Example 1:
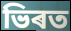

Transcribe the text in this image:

ভিৰত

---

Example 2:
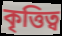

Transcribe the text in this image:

কৃত্তিত্ব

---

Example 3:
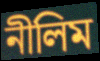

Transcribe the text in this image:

নীলিম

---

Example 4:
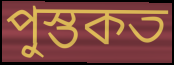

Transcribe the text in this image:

পুস্তকত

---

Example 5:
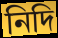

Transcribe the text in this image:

নিদি